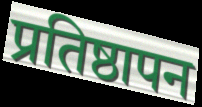
प्रतिष्ठापन